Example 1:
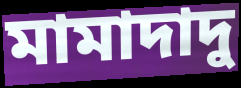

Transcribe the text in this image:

মামাদাদু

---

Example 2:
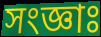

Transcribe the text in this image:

সংজ্ঞাঃ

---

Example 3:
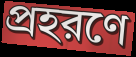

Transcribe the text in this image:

প্রহরণে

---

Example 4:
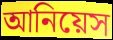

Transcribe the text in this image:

আনিয়েস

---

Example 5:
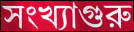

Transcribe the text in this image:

সংখ্যাগুরু